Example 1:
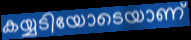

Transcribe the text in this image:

കയ്യടിയോടെയാണ്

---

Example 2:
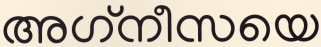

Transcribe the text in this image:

അഗ്‌നീസയെ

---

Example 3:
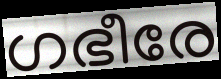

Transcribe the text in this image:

ഗഭീരേ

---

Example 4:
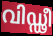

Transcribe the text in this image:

വിഡ്ഢീ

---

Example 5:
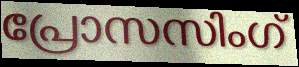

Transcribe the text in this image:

പ്രോസസിംഗ്